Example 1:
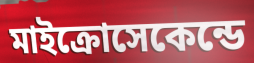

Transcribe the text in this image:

মাইক্রোসেকেন্ডে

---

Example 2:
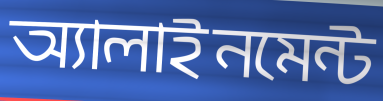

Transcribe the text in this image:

অ্যালাইনমেন্ট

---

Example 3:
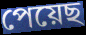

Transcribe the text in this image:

পেয়েছ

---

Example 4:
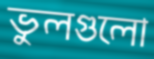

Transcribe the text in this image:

ভুলগুলো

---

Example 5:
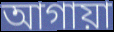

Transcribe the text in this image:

আগায়া